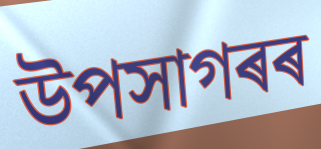
উপসাগৰৰ